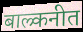
बाल्कनीत